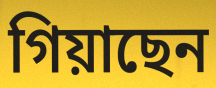
গিয়াছেন